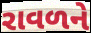
રાવળને